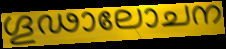
ഗൂഢാലോചന